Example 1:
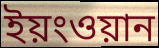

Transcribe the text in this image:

ইয়ংওয়ান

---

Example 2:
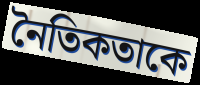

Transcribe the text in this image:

নৈতিকতাকে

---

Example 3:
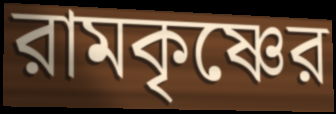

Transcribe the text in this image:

রামকৃষ্ণের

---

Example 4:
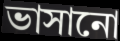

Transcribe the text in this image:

ভাসানো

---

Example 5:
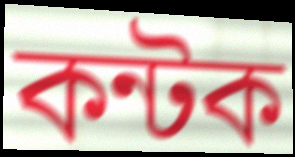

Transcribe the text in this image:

কন্টক